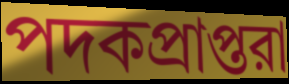
পদকপ্রাপ্তরা